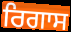
ਰਿਗਾਸ